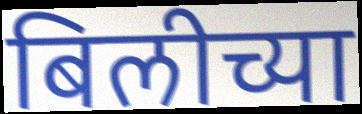
बिलीच्या